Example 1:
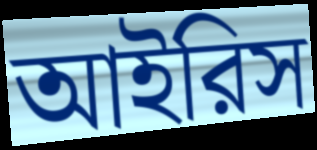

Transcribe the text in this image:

আইরিস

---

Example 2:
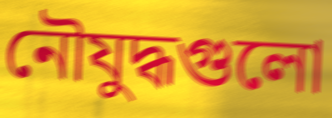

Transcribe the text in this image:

নৌযুদ্ধগুলো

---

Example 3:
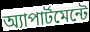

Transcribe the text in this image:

অ্যাপার্টমেন্টে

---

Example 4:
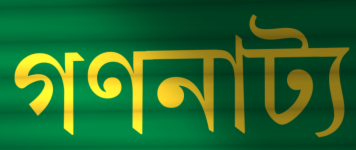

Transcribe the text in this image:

গণনাট্য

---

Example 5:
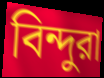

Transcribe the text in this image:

বিন্দুরা